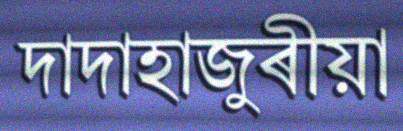
দাদাহাজুৰীয়া